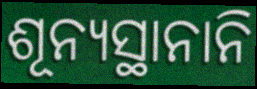
ଶୂନ୍ୟସ୍ଥାନାନି